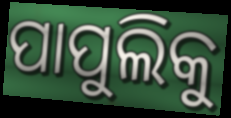
ପାପୁଲିକୁ